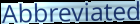
Abbreviated